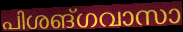
പിശങ്ഗവാസാ